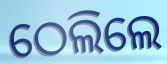
ଠେଲିଲେ